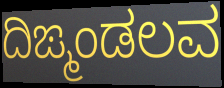
ದಿಙ್ಮಂಡಲವ